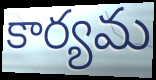
కార్యమ